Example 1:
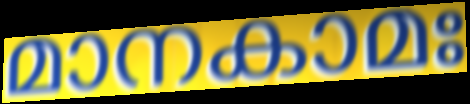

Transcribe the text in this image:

മാനകാമഃ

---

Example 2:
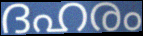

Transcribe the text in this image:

ദഹരം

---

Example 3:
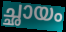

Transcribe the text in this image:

ച്ഛായം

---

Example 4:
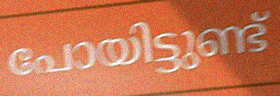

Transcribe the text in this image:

പോയിട്ടുണ്ട്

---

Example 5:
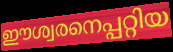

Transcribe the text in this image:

ഈശ്വരനെപ്പറ്റിയ